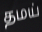
தமய்